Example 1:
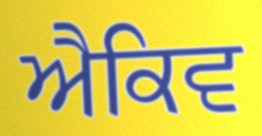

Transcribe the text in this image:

ਐਕਿਵ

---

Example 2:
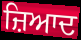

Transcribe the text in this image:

ਜ਼ਿਆਦ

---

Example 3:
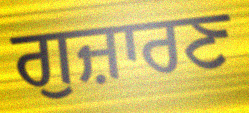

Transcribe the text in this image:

ਗੁਜ਼ਾਰਣ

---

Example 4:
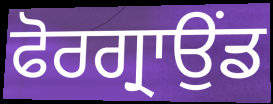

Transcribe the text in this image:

ਫੋਰਗ੍ਰਾਉਂਡ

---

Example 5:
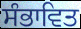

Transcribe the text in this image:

ਸੰਭਾਵਿਤ